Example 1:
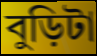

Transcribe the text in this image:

বুড়িটা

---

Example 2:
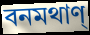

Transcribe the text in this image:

বনমথাণ্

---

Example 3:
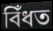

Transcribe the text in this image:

বিঁধত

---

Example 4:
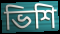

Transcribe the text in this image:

ভিশি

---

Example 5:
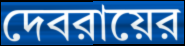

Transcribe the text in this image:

দেবরায়ের